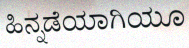
ಹಿನ್ನಡೆಯಾಗಿಯೂ